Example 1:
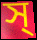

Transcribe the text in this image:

স্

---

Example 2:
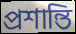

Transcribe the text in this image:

প্ৰশান্তি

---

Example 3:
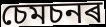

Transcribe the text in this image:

চেমচনৰ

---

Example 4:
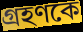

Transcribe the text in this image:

গ্ৰহণকে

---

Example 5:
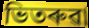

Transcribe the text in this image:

ভিতৰুৱা